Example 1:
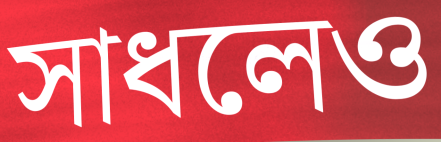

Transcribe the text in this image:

সাধলেও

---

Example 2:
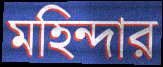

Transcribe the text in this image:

মহিন্দার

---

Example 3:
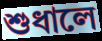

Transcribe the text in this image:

শুধালে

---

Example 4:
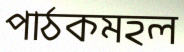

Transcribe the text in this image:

পাঠকমহল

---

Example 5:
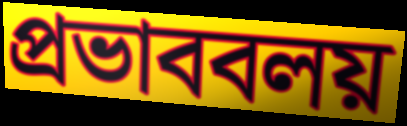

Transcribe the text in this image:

প্রভাববলয়